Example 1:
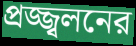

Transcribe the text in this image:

প্রজ্জ্বলনের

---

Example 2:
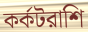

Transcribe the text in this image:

কর্কটরাশি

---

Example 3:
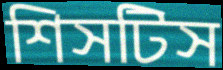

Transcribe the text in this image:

শিসটিস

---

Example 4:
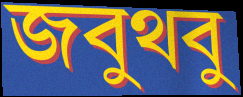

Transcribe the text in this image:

জবুথবু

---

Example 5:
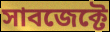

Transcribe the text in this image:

সাবজেক্টে